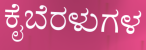
ಕೈಬೆರಳುಗಳ